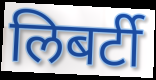
लिबर्टी